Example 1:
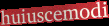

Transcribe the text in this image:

huiuscemodi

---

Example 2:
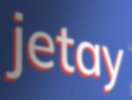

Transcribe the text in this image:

jetay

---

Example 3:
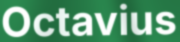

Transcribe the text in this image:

Octavius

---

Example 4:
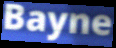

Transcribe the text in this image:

Bayne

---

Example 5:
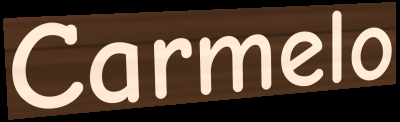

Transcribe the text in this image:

Carmelo